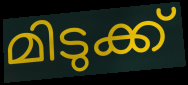
മിടുക്ക്